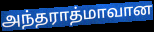
அந்தராத்மாவான